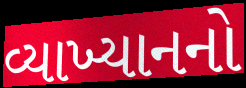
વ્યાખ્યાનનો